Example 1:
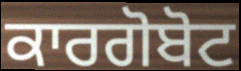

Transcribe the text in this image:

ਕਾਰਗੋਬੋਟ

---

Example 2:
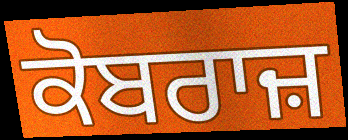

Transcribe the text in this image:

ਕੋਬਰਾਜ਼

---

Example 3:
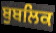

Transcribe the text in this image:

ਬੁਬਲਿਕ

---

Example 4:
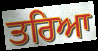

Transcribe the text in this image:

ਤਰਿਆ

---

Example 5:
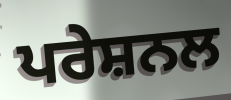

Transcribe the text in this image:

ਪਰੇਸ਼ਨਲ